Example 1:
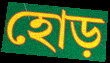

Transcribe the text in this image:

হোড়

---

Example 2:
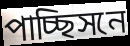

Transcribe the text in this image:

পাচ্ছিসনে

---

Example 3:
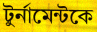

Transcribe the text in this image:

টুর্নামেন্টকে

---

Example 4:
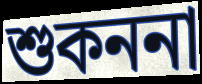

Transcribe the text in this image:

শুকননা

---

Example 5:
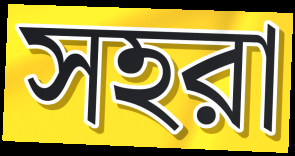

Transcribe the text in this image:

সহরা